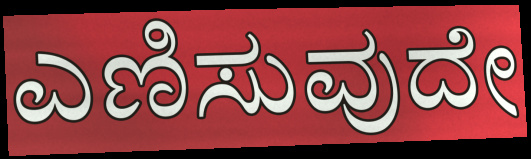
ಎಣಿಸುವುದೇ